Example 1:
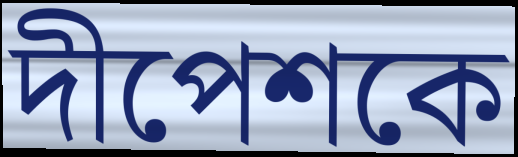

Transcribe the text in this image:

দীপেশকে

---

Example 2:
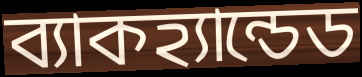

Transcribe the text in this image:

ব্যাকহ্যান্ডেড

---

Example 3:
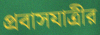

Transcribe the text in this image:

প্রবাসযাত্রীর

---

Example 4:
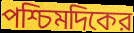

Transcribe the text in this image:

পশ্চিমদিকের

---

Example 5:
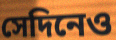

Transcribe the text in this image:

সেদিনেও